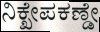
ನಿಕ್ಖೇಪಕಣ್ಡೇ